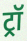
ट्रॉ